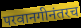
परवानगीनंतरच